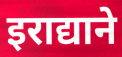
इराद्याने